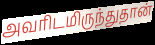
அவரிடமிருந்துதான்